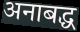
अनाबद्ध